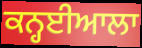
ਕਨ੍ਹਈਆਲਾ